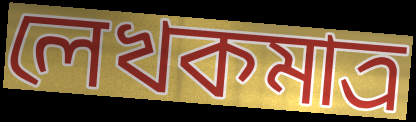
লেখকমাত্র